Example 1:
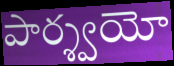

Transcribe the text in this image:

పార్శ్వయో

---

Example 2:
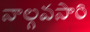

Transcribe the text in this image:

నాల్గవసారి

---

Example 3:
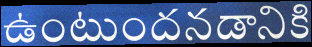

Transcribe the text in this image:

ఉంటుందనడానికి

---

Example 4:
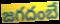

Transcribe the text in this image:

జగదంబే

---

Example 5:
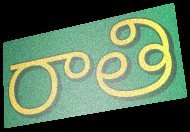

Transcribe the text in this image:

రాతి